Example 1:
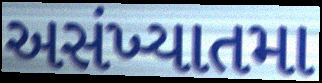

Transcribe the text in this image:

અસંખ્યાતમા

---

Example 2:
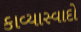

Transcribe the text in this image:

કાવ્યાસ્વાદો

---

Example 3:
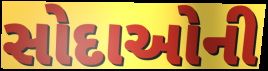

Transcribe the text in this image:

સોદાઓની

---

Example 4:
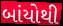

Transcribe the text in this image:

બાંયોથી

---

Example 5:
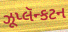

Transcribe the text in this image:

ઝૂપ્લૅન્કટન